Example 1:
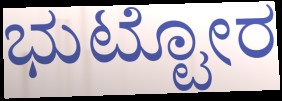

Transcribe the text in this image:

ಭುಟ್ಟೋರ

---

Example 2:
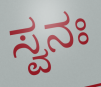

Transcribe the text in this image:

ಸ್ವನಃ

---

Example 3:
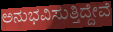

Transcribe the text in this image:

ಅನುಭವಿಸುತ್ತಿದ್ದೇವೆ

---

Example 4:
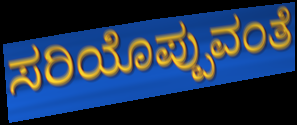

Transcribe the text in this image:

ಸರಿಯೊಪ್ಪುವಂತೆ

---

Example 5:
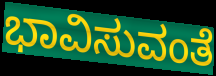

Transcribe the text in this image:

ಭಾವಿಸುವಂತೆ